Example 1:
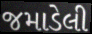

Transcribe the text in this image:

જમાડેલી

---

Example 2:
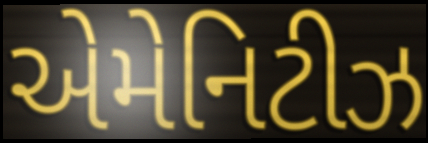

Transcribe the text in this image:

એમેનિટીઝ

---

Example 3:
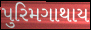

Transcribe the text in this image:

પુરિમગાથાય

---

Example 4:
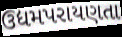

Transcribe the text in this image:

ઉદ્યમપરાયણતા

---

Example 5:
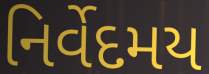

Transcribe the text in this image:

નિર્વેદમય